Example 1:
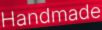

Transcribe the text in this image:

Handmade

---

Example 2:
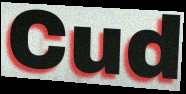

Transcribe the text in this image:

Cud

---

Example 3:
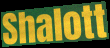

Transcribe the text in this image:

Shalott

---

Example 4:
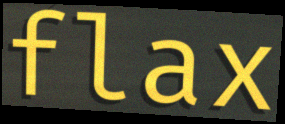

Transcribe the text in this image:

flax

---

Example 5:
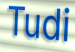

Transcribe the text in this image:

Tudi